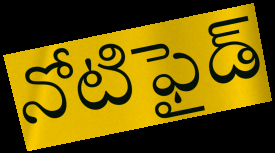
నోటిఫైడ్